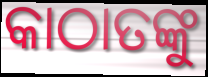
କାଠାତଙ୍କୁ